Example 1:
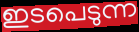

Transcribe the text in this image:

ഇടപെടുന്ന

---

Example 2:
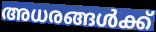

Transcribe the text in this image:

അധരങ്ങൾക്ക്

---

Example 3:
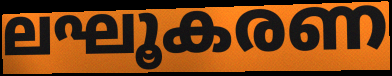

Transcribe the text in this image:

ലഘൂകരണ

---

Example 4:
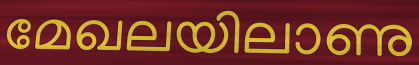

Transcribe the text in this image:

മേഖലയിലാണു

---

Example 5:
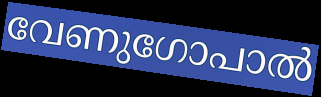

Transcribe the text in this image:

വേണുഗോപാൽ